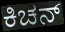
ಕಿಚನ್